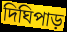
দিঘিপাড়